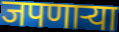
जपणाऱ्या